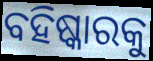
ବହିଷ୍କାରକୁ